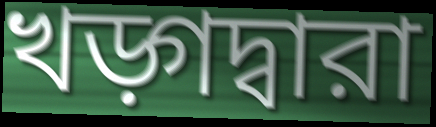
খড়্গদ্বারা